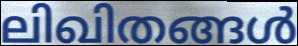
ലിഖിതങ്ങൾ